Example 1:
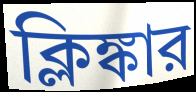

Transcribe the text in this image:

ক্লিঙ্কার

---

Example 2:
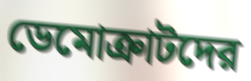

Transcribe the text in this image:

ডেমোক্রাটদের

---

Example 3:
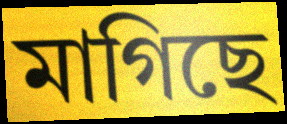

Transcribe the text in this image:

মাগিছে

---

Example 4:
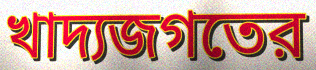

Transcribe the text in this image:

খাদ্যজগতের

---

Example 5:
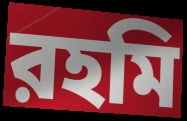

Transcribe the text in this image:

রহমি